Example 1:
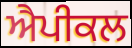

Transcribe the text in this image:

ਐਪੀਕਲ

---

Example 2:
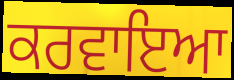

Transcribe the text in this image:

ਕਰਵਾਇਆ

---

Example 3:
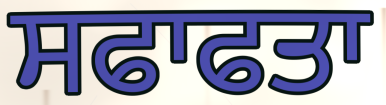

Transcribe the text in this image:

ਸਫਾਫਤਾ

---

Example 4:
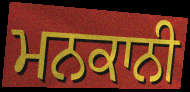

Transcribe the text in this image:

ਮਨਕਾਨੀ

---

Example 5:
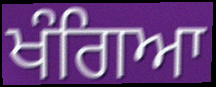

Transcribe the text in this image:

ਖੰਗਿਆ